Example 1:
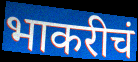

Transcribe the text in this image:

भाकरीचं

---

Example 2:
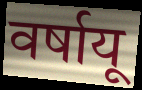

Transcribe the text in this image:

वर्षायू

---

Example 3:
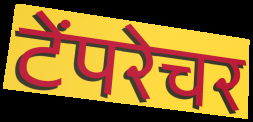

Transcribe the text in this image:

टेंपरेचर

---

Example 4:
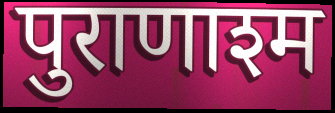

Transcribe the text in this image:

पुराणाश्म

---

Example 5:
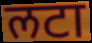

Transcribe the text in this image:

लटा